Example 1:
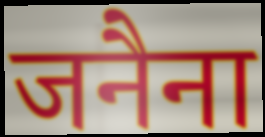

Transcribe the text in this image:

जनैना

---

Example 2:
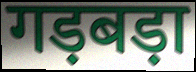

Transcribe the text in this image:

गड़बड़ा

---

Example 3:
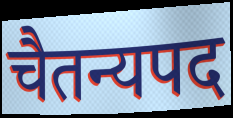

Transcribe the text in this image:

चैतन्यपद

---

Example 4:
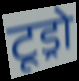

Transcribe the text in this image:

टूड्रो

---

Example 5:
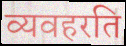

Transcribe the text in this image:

व्यवहरति